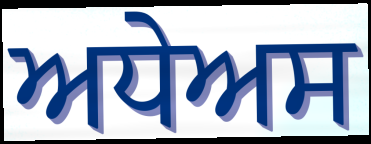
ਅਧੇਅਸ